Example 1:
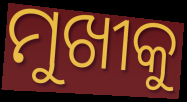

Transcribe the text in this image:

ମୁଖୀକୁ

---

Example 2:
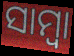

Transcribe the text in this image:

ସାମ୍ବା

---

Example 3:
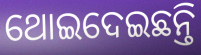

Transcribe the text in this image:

ଥୋଇଦେଇଛନ୍ତି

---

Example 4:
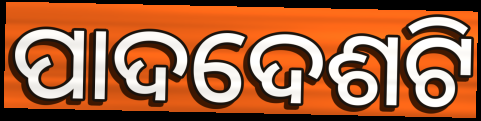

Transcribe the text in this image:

ପାଦଦେଶଟି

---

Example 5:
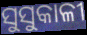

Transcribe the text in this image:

ସୁସୁକାଳୀ